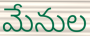
మేనుల